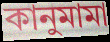
কানুমামা